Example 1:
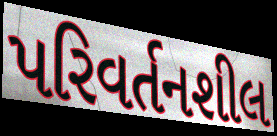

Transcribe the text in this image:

પરિવર્તનશીલ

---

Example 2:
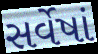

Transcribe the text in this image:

સર્વેષાં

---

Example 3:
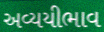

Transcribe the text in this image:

અવ્યયીભાવ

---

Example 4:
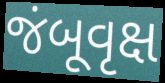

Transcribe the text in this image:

જંબૂવૃક્ષ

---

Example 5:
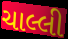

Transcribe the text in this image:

ચાલ્લી